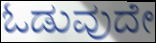
ಓಡುವುದೇ